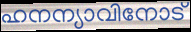
ഹനന്യാവിനോട്